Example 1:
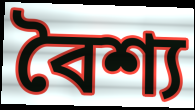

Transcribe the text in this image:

বৈশ্য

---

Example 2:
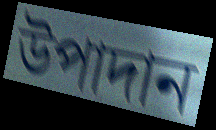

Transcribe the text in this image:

উপাদান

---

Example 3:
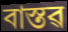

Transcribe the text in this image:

বাস্তৱ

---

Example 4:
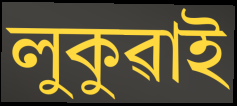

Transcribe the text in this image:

লুকুৱাই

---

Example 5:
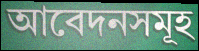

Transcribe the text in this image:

আবেদনসমূহ